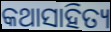
କଥାସାହିତ୍ୟ